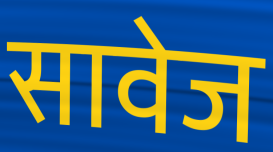
सावेज